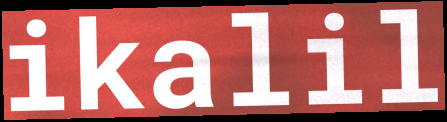
ikalil